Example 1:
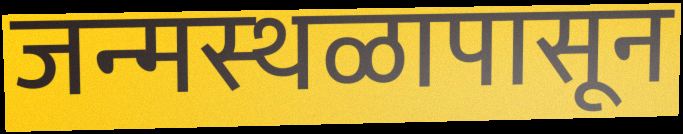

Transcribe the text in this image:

जन्मस्थळापासून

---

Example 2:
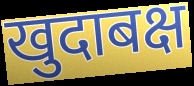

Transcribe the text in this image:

खुदाबक्ष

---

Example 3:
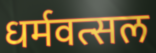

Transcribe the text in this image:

धर्मवत्सल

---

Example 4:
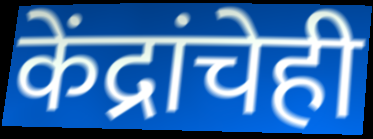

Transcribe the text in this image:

केंद्रांचेही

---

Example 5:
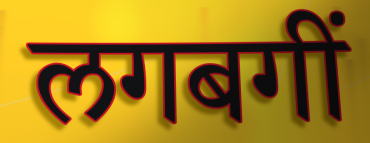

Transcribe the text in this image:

लगबगीं